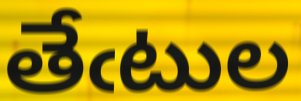
తేఁటుల